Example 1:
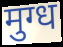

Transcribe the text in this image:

मुग्ध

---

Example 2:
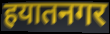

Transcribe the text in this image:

हयातनगर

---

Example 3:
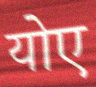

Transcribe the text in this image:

योए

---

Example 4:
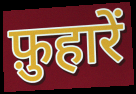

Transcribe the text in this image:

फ़ुहारें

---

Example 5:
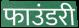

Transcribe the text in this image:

फाउंडरी